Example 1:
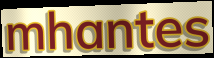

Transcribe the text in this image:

mhantes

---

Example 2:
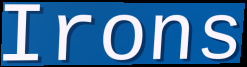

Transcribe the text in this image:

Irons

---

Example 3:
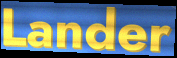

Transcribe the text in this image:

Lander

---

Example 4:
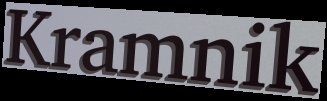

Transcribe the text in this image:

Kramnik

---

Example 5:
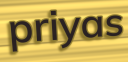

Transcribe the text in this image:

priyas